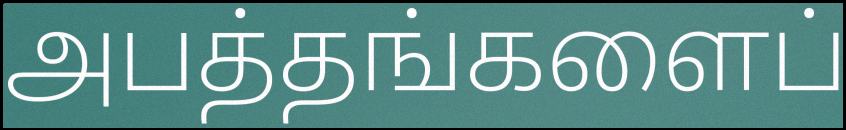
அபத்தங்களைப்